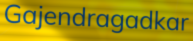
Gajendragadkar